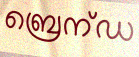
ബ്രെന്ഡ